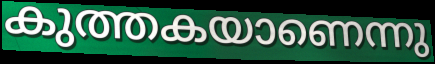
കുത്തകയാണെന്നു